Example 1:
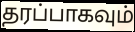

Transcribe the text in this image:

தரப்பாகவும்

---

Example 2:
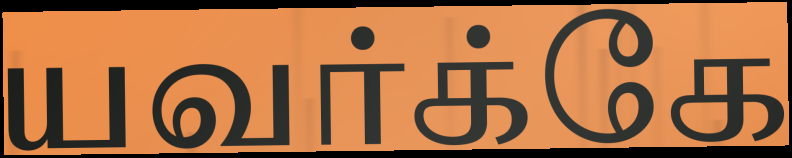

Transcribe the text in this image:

யவர்க்கே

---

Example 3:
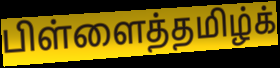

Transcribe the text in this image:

பிள்ளைத்தமிழ்க்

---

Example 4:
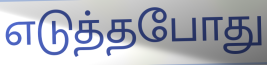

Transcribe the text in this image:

எடுத்தபோது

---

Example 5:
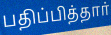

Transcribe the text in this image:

பதிப்பித்தார்